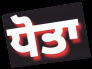
ਧੋਤਾ